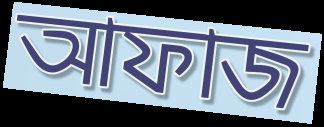
আফাজ